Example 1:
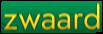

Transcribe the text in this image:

zwaard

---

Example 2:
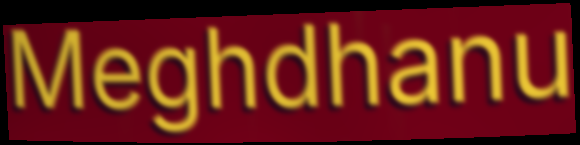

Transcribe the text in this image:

Meghdhanu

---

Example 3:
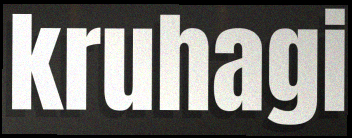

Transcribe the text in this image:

kruhagi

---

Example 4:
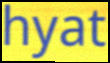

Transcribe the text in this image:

hyat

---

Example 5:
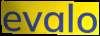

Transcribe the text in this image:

evalo